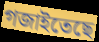
গজাইতেছে